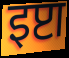
इप्टा